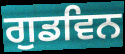
ਗੁਡਵਿਨ